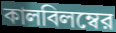
কালবিলম্বের